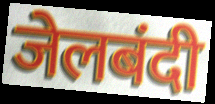
जेलबंदी